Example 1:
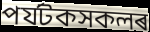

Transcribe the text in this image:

পৰ্যটকসকলৰ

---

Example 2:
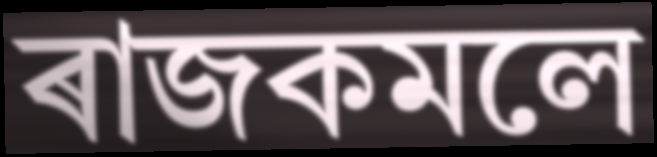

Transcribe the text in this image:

ৰাজকমলে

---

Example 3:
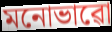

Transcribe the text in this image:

মনোভাৱো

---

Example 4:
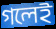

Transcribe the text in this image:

গলেই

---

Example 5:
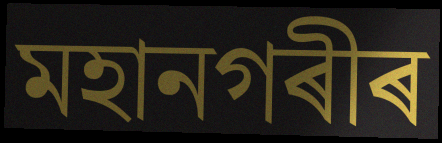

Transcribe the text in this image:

মহানগৰীৰ